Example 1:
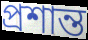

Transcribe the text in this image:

প্রশান্ত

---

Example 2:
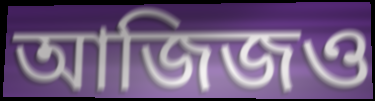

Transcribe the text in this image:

আজিজও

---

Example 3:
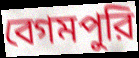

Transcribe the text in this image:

বেগমপুরি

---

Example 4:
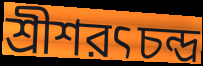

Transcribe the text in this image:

শ্রীশরৎচন্দ্র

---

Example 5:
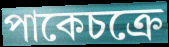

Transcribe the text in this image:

পাকেচক্রে